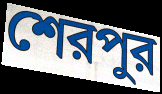
শেরপুর